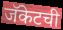
जॅकेटची